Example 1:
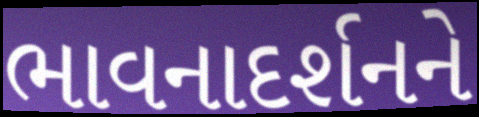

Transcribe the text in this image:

ભાવનાદર્શનને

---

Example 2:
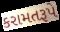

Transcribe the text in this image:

કરામતરૂપે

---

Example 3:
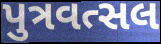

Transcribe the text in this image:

પુત્રવત્સલ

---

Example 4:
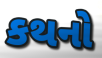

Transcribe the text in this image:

કથનો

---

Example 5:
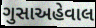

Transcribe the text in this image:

ગુસાઅહેવાલ